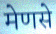
मेणसे